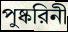
পুষ্করিনী